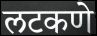
लटकणे